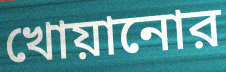
খোয়ানোর